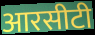
आरसीटी